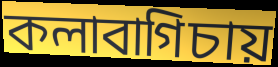
কলাবাগিচায়